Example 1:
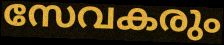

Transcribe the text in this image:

സേവകരും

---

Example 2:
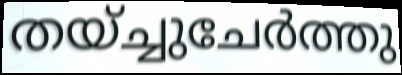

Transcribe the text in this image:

തയ്ച്ചുചേർത്തു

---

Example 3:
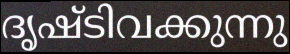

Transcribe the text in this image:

ദൃഷ്ടിവക്കുന്നു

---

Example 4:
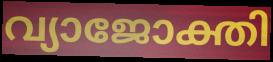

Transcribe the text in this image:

വ്യാജോക്തി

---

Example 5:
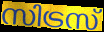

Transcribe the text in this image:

സിട്രസ്